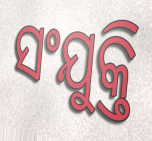
ସଂଯୁକ୍ତି